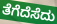
ತೆಗೆದೆಸೆದು